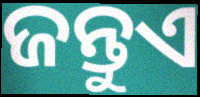
ଜନ୍ତୁଏ